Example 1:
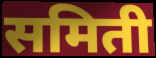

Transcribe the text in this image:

समिती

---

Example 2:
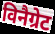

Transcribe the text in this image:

विनैग्रेट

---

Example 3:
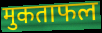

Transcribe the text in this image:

मुकताफल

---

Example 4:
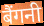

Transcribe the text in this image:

बैंगनी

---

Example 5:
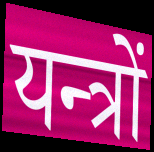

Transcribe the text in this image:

यन्त्रों